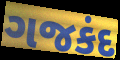
ગજકંદ